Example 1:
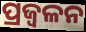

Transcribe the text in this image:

ପ୍ରଜ୍ବଳନ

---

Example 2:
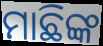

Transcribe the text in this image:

ମାଛିଙ୍କ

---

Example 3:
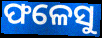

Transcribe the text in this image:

ଫଳେସୁ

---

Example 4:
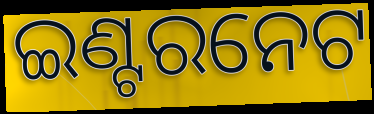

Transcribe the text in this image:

ଇଣ୍ଟରନେଟ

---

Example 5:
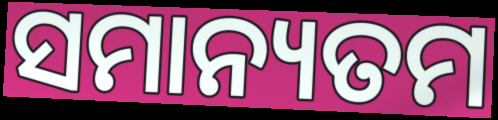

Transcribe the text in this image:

ସମାନ୍ୟତମ